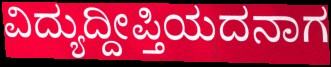
ವಿದ್ಯುದ್ದೀಪ್ತಿಯದನಾಗ